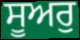
ਸੂਅਰੁ